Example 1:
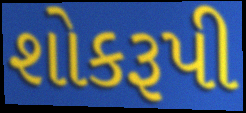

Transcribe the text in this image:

શોકરૂપી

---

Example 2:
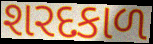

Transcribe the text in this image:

શરદકાળ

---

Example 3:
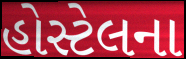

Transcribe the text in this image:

હોસ્ટેલના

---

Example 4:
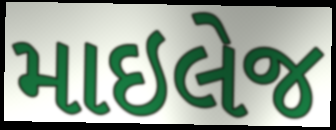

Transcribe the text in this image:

માઇલેજ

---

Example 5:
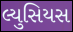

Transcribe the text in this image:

લ્યુસિયસ